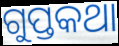
ଗୁପ୍ତକଥା